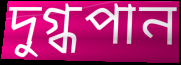
দুগ্ধপান